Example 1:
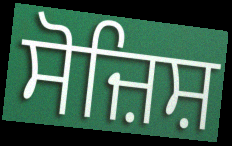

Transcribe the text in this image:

ਸੋਜ਼ਿਸ਼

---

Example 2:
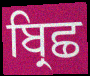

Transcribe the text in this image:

ਬ੍ਰਿਛ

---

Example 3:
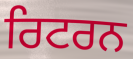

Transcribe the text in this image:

ਰਿਟਰਨ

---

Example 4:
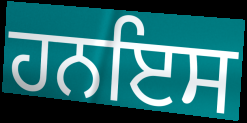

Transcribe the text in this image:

ਹਨਇਸ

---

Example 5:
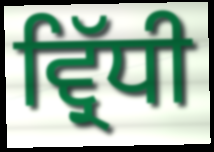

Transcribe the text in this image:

ਵ੍ਰਿੱਧੀ